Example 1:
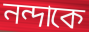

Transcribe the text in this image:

নন্দাকে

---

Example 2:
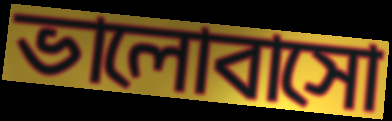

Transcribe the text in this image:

ভালোবাসো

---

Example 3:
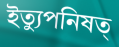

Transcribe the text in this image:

ইত্যুপনিষত্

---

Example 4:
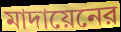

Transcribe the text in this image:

মাদায়েনের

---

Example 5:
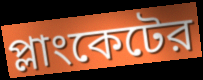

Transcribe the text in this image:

প্লাংকেটের